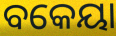
ବକେୟା